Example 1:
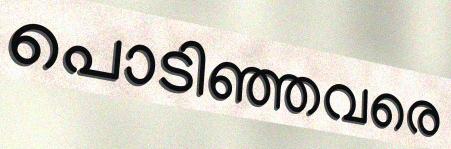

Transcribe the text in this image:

പൊടിഞ്ഞവരെ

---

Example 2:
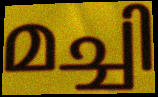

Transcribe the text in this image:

മച്ചി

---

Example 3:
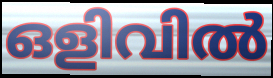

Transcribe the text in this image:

ഒളിവിൽ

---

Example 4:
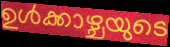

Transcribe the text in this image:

ഉൾക്കാഴ്ചയുടെ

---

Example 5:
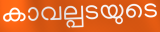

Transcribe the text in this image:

കാവല്പടയുടെ